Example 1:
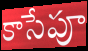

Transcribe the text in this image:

కాసేపూ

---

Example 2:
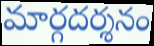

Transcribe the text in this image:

మార్గదర్శనం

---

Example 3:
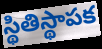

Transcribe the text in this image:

స్థితిస్థాపక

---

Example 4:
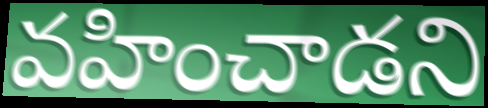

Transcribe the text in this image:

వహించాడని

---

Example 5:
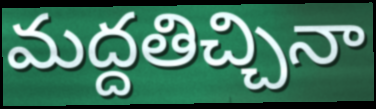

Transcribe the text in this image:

మద్దతిచ్చినా